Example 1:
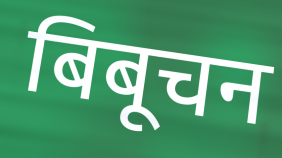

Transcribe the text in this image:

बिबूचन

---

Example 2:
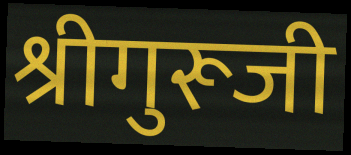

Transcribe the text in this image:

श्रीगुरूजी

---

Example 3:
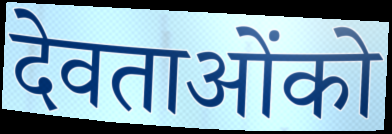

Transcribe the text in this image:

देवताओंको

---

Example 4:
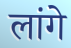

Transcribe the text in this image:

लांगे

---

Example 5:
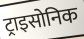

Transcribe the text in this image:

ट्राइसोनिक